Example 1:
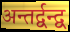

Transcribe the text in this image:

अन्तर्द्वन्द्व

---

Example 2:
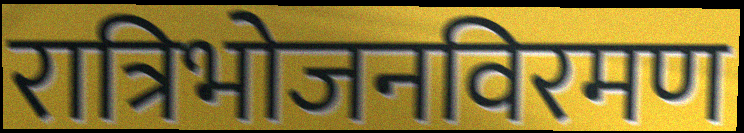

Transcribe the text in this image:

रात्रिभोजनविरमण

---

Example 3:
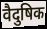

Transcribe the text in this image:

वैदुषिक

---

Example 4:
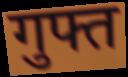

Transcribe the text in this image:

गुफ्त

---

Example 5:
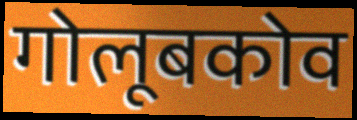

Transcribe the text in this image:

गोलूबकोव